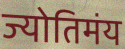
ज्योतिमंय